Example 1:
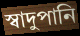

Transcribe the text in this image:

স্বাদুপানি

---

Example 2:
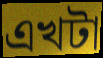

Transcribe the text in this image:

এখটা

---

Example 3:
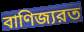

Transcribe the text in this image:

বাণিজ্যরত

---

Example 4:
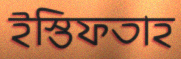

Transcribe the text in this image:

ইস্তিফতাহ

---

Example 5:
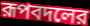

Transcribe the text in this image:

রূপবদলের